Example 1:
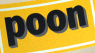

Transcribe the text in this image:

poon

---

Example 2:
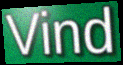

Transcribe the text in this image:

Vind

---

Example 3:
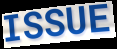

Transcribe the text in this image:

ISSUE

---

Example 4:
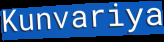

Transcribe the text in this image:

Kunvariya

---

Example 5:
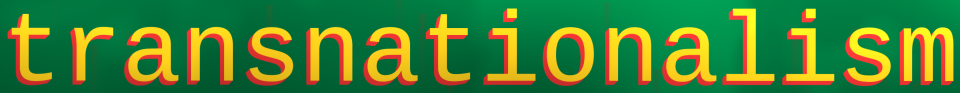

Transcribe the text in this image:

transnationalism